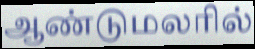
ஆண்டுமலரில்